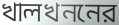
খালখননের